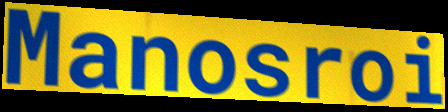
Manosroi